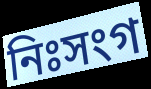
নিঃসংগ